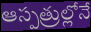
ఆస్పత్రుల్లోనే